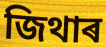
জিথাৰ